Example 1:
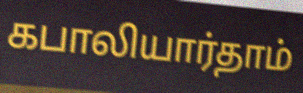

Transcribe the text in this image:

கபாலியார்தாம்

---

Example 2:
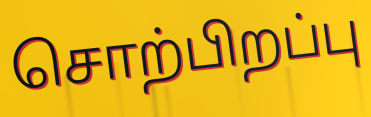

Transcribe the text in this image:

சொற்பிறப்பு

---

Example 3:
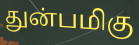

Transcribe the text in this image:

துன்பமிகு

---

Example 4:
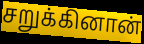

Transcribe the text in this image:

சறுக்கினான்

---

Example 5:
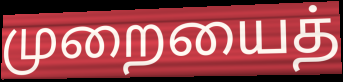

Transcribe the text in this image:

முறையைத்